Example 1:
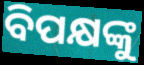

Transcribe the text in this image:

ବିପକ୍ଷଙ୍କୁ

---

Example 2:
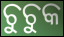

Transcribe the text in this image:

ଚୁଚୁକ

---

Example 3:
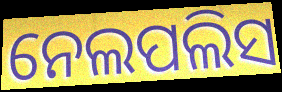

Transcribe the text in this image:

ନେଲପଲିସ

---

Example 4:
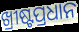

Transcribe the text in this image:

ଖ୍ରୀଷ୍ଟପ୍ରଧାନ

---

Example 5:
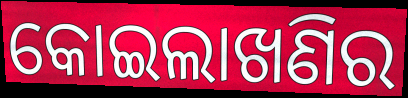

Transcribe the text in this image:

କୋଇଲାଖଣିର